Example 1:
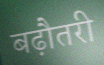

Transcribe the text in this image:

बढ़ौतरी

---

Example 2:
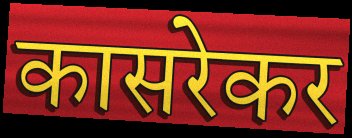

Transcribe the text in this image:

कासरेकर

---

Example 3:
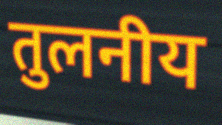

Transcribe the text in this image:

तुलनीय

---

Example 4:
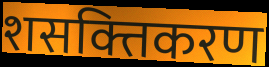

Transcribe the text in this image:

शसक्तिकरण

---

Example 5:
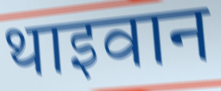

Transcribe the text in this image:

थाइवान